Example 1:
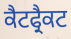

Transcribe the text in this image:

ਕੈਟਫ੍ਰੈਕਟ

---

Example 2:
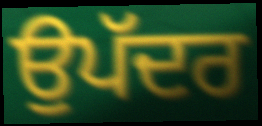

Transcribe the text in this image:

ਉਪੱਦਰ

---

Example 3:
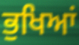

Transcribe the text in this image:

ਭੁਖਿਆਂ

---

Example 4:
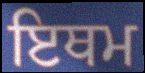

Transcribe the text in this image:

ਇਥਮ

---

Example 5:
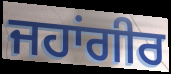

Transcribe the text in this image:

ਜਹਾਂਗੀਰ